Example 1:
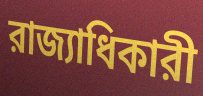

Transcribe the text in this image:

রাজ্যাধিকারী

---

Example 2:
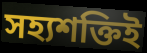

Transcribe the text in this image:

সহ্যশক্তিই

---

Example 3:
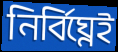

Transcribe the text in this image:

নির্বিঘ্নেই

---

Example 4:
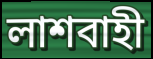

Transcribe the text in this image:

লাশবাহী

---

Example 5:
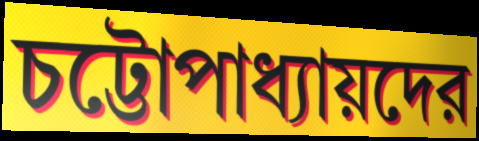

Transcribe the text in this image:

চট্টোপাধ্যায়দের